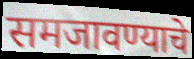
समजावण्याचे